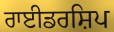
ਰਾਈਡਰਸ਼ਿਪ